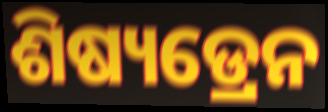
ଶିଷ୍ୟଡ୍ରେନ